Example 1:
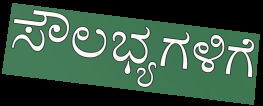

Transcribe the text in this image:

ಸೌಲಭ್ಯಗಳಿಗೆ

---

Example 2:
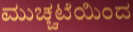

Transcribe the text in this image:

ಮುಚ್ಚಟೆಯಿಂದ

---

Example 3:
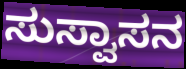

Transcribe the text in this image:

ಸುಸ್ವಾಸನ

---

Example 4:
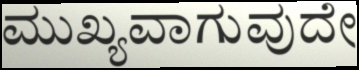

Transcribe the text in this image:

ಮುಖ್ಯವಾಗುವುದೇ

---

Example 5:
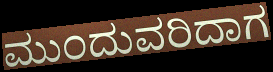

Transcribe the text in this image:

ಮುಂದುವರಿದಾಗ